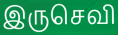
இருசெவி